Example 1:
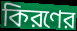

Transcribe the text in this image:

কিরণের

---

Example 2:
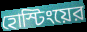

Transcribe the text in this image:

হোস্টিংয়ের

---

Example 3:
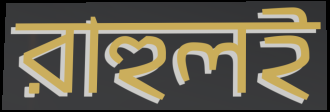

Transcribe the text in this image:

রাহুলই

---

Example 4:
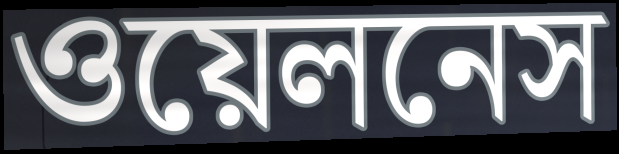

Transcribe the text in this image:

ওয়েলনেস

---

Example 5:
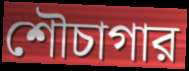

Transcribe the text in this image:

শৌচাগার